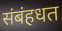
संबंहधत